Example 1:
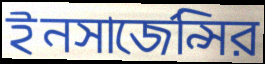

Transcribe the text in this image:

ইনসার্জেন্সির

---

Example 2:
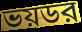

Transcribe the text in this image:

ভয়ডর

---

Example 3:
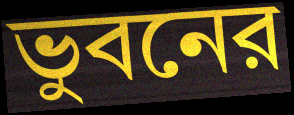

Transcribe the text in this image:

ভুবনের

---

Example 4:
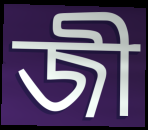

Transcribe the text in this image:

জী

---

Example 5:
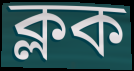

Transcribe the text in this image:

ক্লক